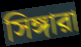
সিঙ্গারা